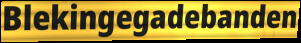
Blekingegadebanden